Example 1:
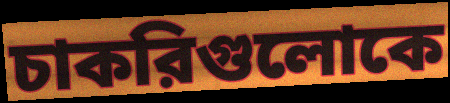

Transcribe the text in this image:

চাকরিগুলোকে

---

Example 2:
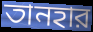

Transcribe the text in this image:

তানহার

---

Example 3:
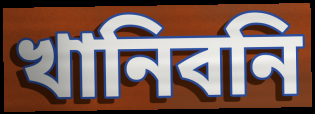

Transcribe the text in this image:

খানিবনি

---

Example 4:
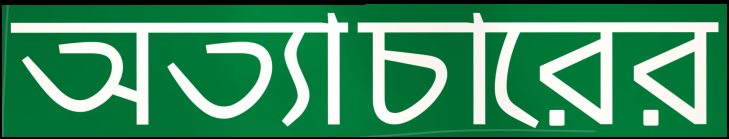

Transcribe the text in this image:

অত্যাচারের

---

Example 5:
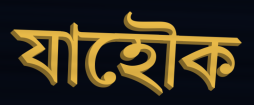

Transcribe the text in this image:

যাহৌক